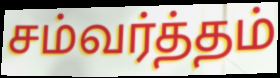
சம்வர்த்தம்